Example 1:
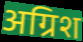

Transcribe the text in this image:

अग्रिश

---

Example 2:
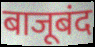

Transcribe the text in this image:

बाजूबंद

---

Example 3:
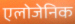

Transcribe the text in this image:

एलोजेनिक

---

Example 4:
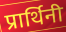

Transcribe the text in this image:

प्रार्थिनी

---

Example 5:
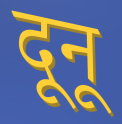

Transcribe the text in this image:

दूनू